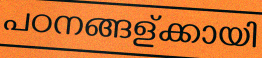
പഠനങ്ങള്ക്കായി